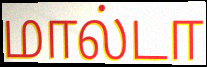
மால்டா